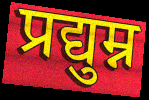
प्रद्युम्न